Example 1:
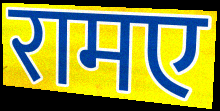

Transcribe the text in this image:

रामए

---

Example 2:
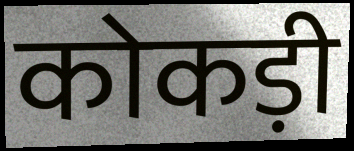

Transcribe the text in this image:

कोकड़ी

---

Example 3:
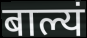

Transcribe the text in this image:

बाल्यं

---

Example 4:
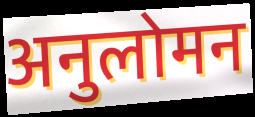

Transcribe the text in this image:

अनुलोमन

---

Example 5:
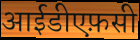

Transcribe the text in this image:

आईडीएफ़सी